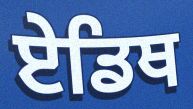
ਏਡਿਥ